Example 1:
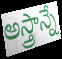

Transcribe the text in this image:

అస్త్రాన్నే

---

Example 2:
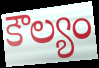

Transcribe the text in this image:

కౌల్యం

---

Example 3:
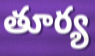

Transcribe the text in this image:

తూర్య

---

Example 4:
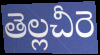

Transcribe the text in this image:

తెల్లచీరె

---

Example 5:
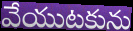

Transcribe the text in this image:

వేయుటకును